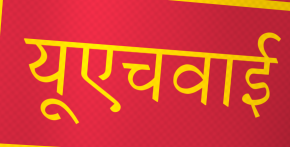
यूएचवाई